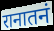
रानातनं